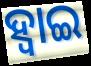
ହ୍ଵାଇ